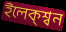
ইলেক্‌শ্বন